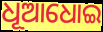
ଧୂଆଧୋଇ